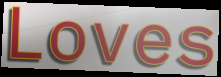
Loves